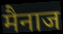
मैनाज